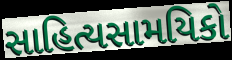
સાહિત્યસામયિકો